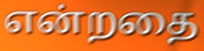
என்றதை